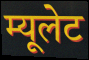
म्यूलेट